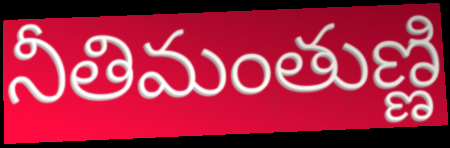
నీతిమంతుణ్ణి